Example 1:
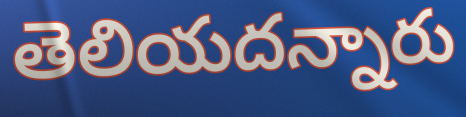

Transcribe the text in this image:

తెలియదన్నారు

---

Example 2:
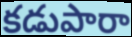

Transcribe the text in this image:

కడుపారా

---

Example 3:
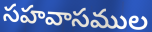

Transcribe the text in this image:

సహవాసముల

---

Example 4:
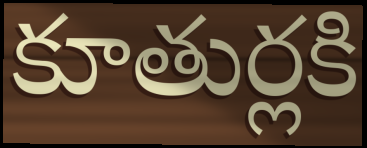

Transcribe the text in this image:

కూతుర్లకి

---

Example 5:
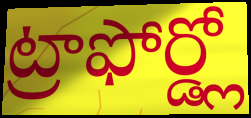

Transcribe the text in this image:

ట్రాఫోర్డ్లో